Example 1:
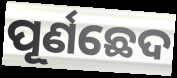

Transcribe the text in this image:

ପୂର୍ଣଛେଦ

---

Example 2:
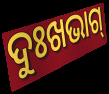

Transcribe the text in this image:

ଦୁଃଖଭାଗ୍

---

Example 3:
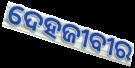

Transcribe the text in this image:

ଦେହଜୀବୀର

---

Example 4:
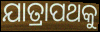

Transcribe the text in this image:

ଯାତ୍ରାପଥକୁ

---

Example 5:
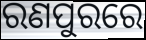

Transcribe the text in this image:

ରଣପୁରରେ